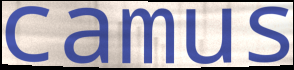
camus